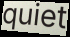
quiet